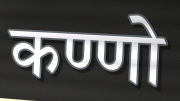
कण्णो